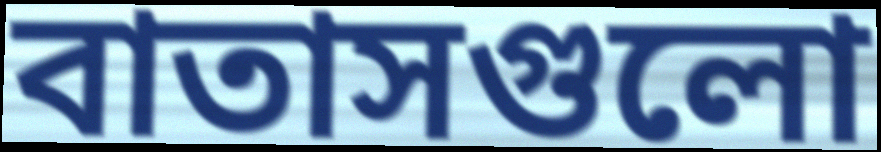
বাতাসগুলো